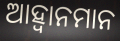
ଆହ୍ୱାନମାନ